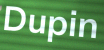
Dupin